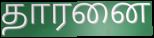
தாரனை